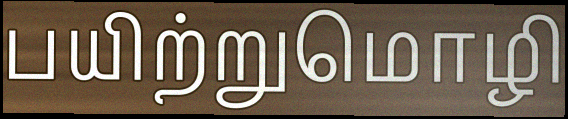
பயிற்றுமொழி